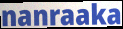
nanraaka